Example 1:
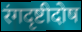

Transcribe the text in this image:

रंगदृष्टीदोष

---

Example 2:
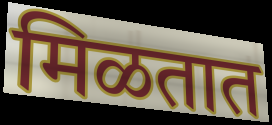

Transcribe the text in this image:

मिळतात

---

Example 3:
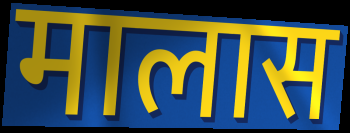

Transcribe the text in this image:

मालास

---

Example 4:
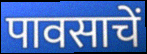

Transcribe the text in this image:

पावसाचें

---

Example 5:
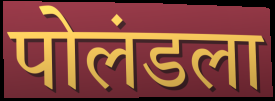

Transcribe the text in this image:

पोलंडला